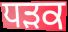
ਧਡ਼ਕ